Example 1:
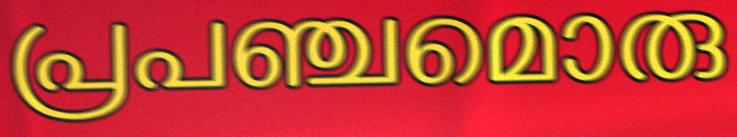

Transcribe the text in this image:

പ്രപഞ്ചമൊരു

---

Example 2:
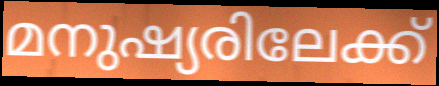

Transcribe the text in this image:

മനുഷ്യരിലേക്ക്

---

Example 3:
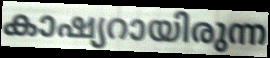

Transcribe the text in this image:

കാഷ്യറായിരുന്ന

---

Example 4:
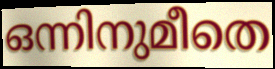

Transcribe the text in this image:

ഒന്നിനുമീതെ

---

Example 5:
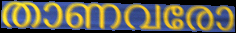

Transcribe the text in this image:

താണവരോ